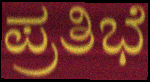
ಪ್ರತಿಭೆ